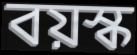
বয়স্ক